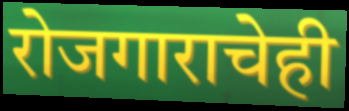
रोजगाराचेही